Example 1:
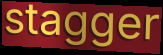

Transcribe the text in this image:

stagger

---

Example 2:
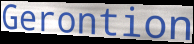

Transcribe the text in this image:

Gerontion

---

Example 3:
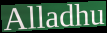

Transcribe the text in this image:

Alladhu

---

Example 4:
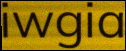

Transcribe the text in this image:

iwgia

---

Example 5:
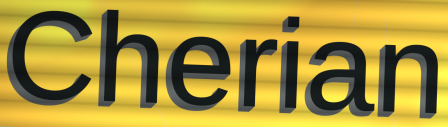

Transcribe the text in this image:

Cherian